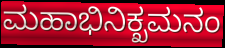
ಮಹಾಭಿನಿಕ್ಖಮನಂ